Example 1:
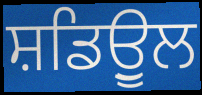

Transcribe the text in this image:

ਸ਼ਡਿਉੂਲ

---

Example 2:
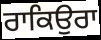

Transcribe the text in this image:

ਰਾਕਿਉਰਾ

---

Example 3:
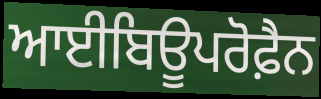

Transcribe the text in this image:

ਆਈਬਿਊਪਰੋਫ਼ੈਨ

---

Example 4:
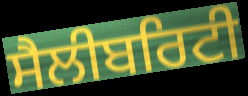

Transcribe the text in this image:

ਸੈਲੀਬਰਿਟੀ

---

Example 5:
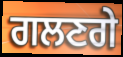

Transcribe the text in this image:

ਗਲਣਗੇ